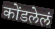
कोंडलेलं